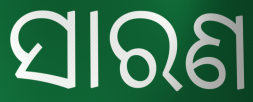
ସାରଣ